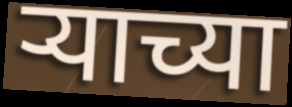
ऱ्याच्या